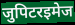
जुपिटरइमेज